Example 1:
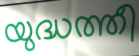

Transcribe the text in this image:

യുദ്ധത്തീ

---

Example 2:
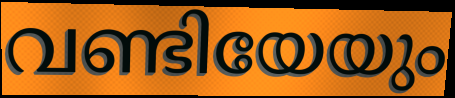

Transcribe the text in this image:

വണ്ടിയേയും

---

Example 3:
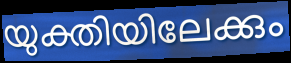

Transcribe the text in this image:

യുക്തിയിലേക്കും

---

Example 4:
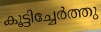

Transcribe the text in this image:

കൂട്ടിച്ചേർത്തു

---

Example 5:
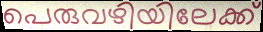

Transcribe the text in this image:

പെരുവഴിയിലേക്ക്